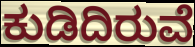
ಕುಡಿದಿರುವೆ